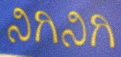
ನಿಗಿನಿಗಿ